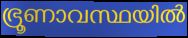
ഭ്രൂണാവസ്ഥയിൽ